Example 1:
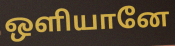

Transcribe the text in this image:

ஒளியானே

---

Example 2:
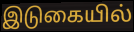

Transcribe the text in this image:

இடுகையில்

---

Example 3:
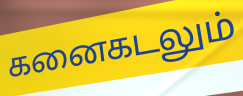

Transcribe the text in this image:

கனைகடலும்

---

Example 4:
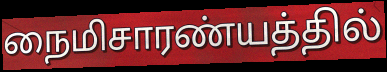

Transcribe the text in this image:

நைமிசாரண்யத்தில்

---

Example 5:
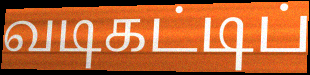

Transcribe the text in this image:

வடிகட்டிப்